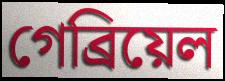
গেব্রিয়েল